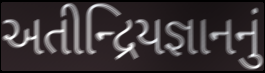
અતીન્દ્રિયજ્ઞાનનું